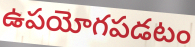
ఉపయోగపడటం